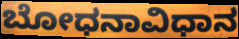
ಬೋಧನಾವಿಧಾನ